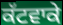
ਕੱਟਵਾਕੇ